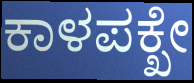
ಕಾಳಪಕ್ಖೇ